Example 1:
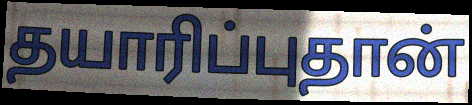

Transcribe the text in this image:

தயாரிப்புதான்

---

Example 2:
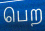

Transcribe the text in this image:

பெற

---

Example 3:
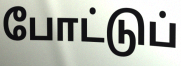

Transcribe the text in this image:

போட்டுப்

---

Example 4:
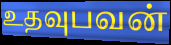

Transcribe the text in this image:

உதவுபவன்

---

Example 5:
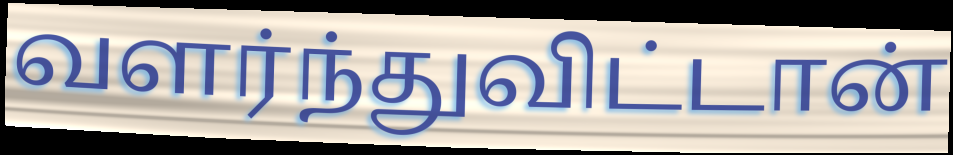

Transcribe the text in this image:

வளர்ந்துவிட்டான்